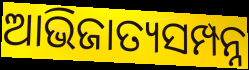
ଆଭିଜାତ୍ୟସମ୍ପନ୍ନ